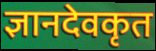
ज्ञानदेवकृत